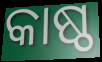
କାଷ୍ଠ